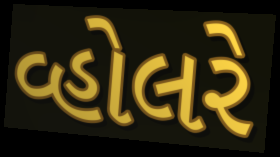
વ્હોલરે